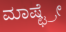
ಮಾಷ್ಟ್ರೇ